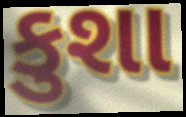
કુશા